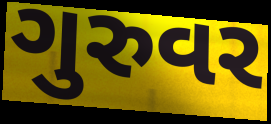
ગુરુવર